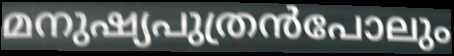
മനുഷ്യപുത്രൻപോലും